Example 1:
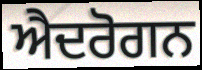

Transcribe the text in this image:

ਐਦਰੋਗਨ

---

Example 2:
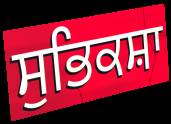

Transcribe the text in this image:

ਸੁਭਿਕਸ਼ਾ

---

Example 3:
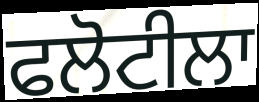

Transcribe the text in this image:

ਫਲੋਟੀਲਾ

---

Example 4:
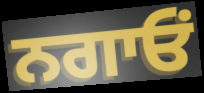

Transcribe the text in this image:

ਨਗਾਓਂ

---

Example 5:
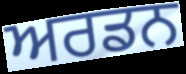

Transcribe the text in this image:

ਅਰਡਨ